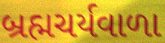
બ્રહ્મચર્યવાળા